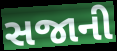
સજાની